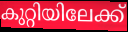
കുറ്റിയിലേക്ക്